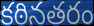
కఠినతరం